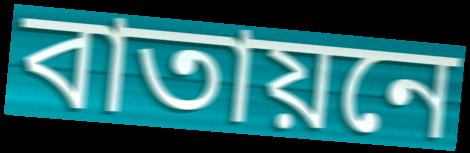
বাতায়নে